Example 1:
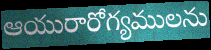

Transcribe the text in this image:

ఆయురారోగ్యములను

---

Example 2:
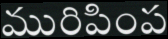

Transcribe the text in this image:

మురిపింప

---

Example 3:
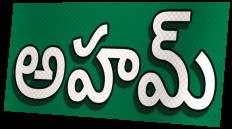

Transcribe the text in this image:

అహమ్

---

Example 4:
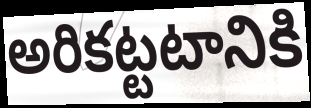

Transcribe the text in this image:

అరికట్టటానికి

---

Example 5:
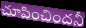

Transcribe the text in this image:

చూపించిందనీ